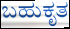
ಬಹುಕೃತ